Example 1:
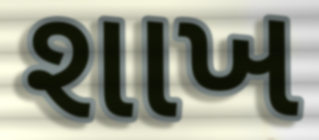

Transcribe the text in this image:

શાખ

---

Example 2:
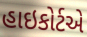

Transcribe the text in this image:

હાઇકોર્ટએ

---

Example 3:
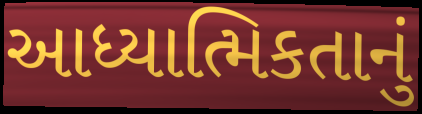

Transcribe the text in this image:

આધ્યાત્મિકતાનું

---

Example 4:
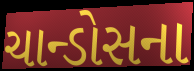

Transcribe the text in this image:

ચાન્ડોસના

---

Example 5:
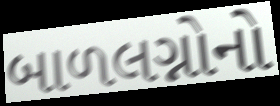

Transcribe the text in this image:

બાળલગ્નોનો